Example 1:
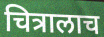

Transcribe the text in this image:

चित्रालाच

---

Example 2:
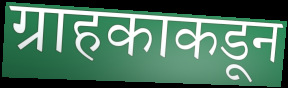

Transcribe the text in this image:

ग्राहकाकडून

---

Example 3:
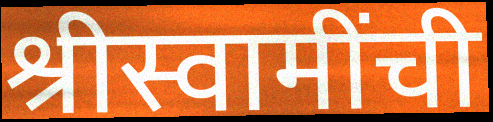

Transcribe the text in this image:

श्रीस्वामींची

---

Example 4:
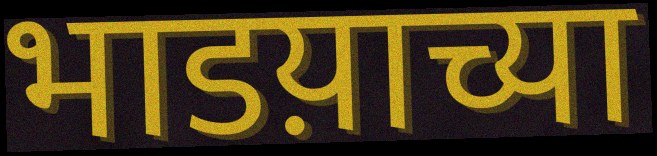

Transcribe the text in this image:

भाडय़ाच्या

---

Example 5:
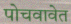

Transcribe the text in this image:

पोचवावेत